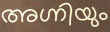
അഗ്നിയും